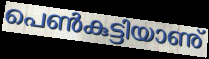
പെൺകുട്ടിയാണു്